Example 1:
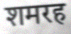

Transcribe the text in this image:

शमरह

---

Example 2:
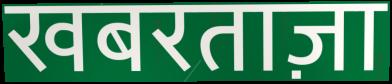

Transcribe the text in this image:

खबरताज़ा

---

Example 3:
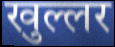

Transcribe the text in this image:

खुल्लर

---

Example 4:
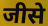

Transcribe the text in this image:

जीसे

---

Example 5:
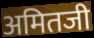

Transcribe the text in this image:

अमितजी